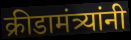
क्रीडामंत्र्यांनी